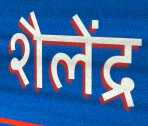
शैलेंद्र